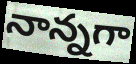
నాన్నగా